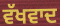
ਵੱਖਵਾਦ